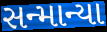
સન્માન્યા